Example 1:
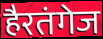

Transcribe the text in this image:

हैरतंगेज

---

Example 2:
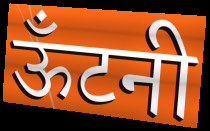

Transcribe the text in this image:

ऊँटनी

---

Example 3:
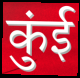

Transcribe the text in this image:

कुंई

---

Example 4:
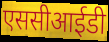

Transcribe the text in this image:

एससीआईडी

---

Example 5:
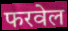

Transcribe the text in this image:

फरवेल